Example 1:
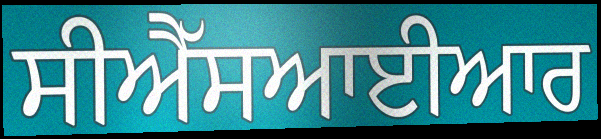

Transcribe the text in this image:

ਸੀਐੱਸਆਈਆਰ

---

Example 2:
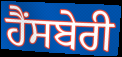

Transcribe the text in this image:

ਹੈਂਸਬੇਰੀ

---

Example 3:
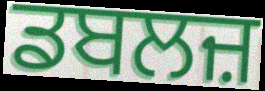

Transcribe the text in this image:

ਡਬਲਜ਼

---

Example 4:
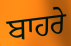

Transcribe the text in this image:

ਬਾਹਰੇ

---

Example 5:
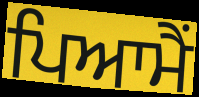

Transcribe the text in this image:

ਪਿਆਮੈਂ